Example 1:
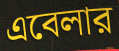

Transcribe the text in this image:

এবেলার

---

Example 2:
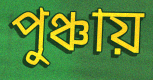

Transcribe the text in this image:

পুঞ্চায়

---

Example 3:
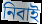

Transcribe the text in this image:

নিবাই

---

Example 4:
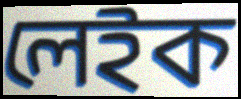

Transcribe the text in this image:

লেইক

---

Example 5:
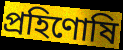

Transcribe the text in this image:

প্রহিণোষি